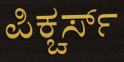
ಪಿಕ್ಚರ್ಸ್